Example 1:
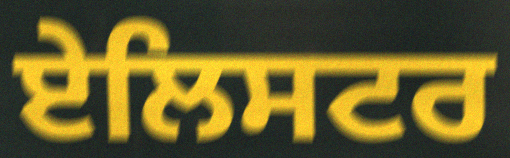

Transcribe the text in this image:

ਏਲਿਸਟਰ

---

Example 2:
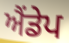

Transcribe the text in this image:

ਐਂਡੇਪ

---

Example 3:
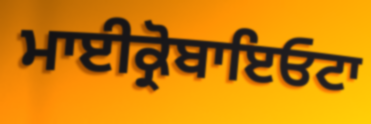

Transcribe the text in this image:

ਮਾਈਕ੍ਰੋਬਾਇਓਟਾ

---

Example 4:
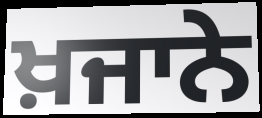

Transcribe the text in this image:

ਖ਼ਜਾਨੇ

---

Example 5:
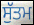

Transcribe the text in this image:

ਸੁੱਤਮ